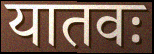
यातवः